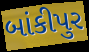
બાંકીપુર